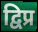
द्विप्र